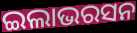
ଇଲାଭରସନ